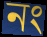
নং